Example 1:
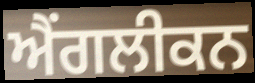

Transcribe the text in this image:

ਐਂਗਲੀਕਨ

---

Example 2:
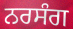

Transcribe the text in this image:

ਨਰਸੰਗ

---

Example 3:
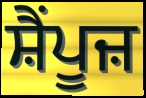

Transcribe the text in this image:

ਸ਼ੈਂਪੂਜ਼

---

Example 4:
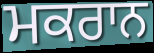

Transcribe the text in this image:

ਮਕਰਾਨ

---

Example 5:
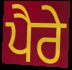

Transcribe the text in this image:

ਪੈਰੇ